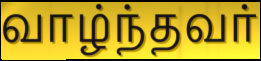
வாழ்ந்தவர்